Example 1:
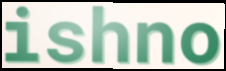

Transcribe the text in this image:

ishno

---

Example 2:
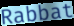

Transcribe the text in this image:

Rabbat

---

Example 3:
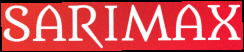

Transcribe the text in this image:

SARIMAX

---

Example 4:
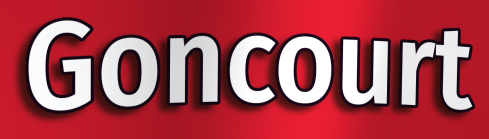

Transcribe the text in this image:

Goncourt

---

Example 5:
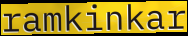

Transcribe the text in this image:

ramkinkar